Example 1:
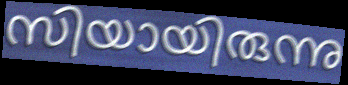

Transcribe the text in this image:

സിയായിരുന്നു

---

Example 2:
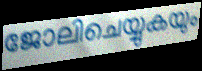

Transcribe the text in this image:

ജോലിചെയ്യുകയും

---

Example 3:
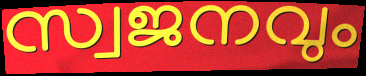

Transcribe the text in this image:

സ്വജനവും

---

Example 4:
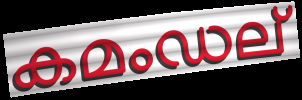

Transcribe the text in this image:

കമംഡല്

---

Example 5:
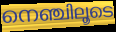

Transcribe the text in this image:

നെഞ്ചിലൂടെ